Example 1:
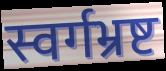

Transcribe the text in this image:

स्वर्गभ्रष्ट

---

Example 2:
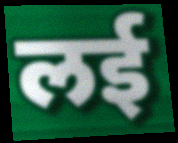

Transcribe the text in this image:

लई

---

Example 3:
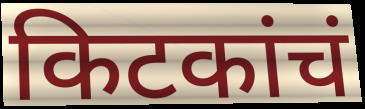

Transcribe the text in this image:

किटकांचं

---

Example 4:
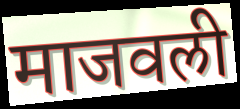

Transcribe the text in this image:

माजवली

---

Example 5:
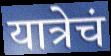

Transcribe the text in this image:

यात्रेचं